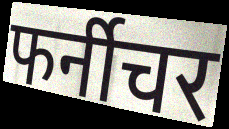
फर्नीचर